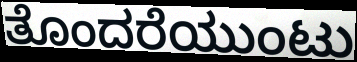
ತೊಂದರೆಯುಂಟು